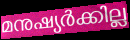
മനുഷ്യർക്കില്ല